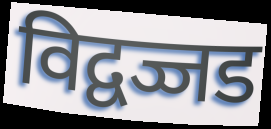
विद्वज्जड